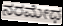
ನರಮೇಧ